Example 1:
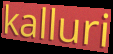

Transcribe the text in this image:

kalluri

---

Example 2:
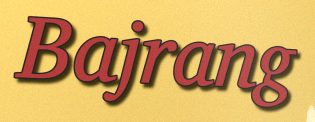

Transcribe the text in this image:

Bajrang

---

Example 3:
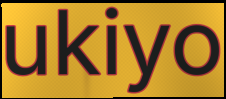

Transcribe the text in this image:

ukiyo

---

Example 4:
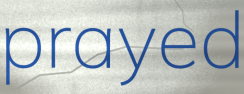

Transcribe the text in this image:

prayed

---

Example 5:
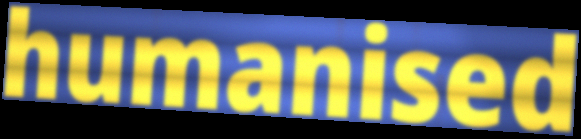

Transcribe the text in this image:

humanised